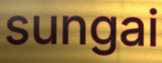
sungai